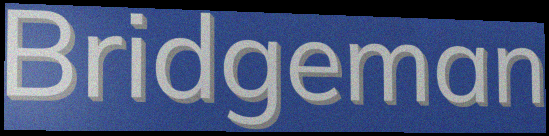
Bridgeman